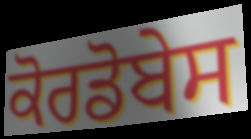
ਕੋਰਡੋਬੇਸ